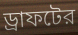
ড্রাফটের